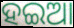
ହଇଆ